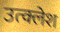
उत्क्लेश